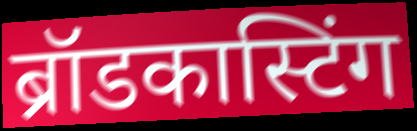
ब्रॉडकास्टिंग